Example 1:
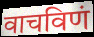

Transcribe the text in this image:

वाचविणं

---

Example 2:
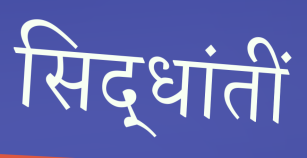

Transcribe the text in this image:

सिद्धांतीं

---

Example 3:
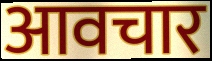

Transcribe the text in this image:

आवचार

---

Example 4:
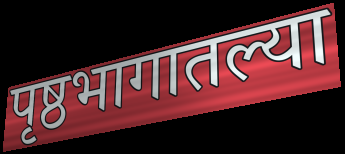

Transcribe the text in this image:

पृष्ठभागातल्या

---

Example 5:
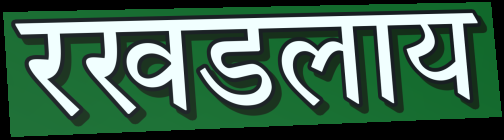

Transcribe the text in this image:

रखडलाय